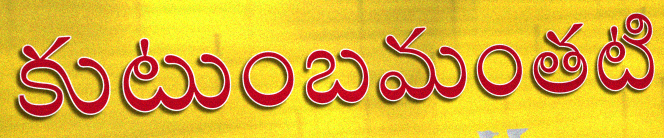
కుటుంబమంతటి